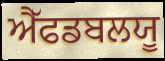
ਐੱਫਡਬਲਯੂ